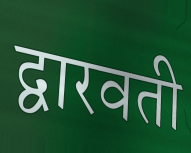
द्वारवती